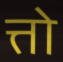
त्तो